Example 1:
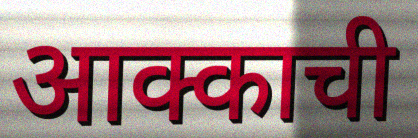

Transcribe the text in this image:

आक्काची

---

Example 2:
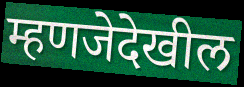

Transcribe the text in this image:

म्हणजेदेखील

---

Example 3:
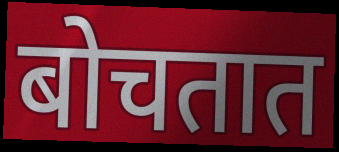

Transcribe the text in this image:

बोचतात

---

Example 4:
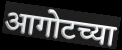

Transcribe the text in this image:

आगोटच्या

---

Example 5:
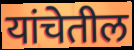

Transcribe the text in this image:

यांचेतील